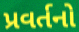
પ્રવર્તનો